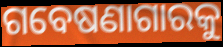
ଗବେଷଣାଗାରକୁ